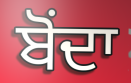
ਬੋੰਦਾ